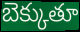
బెక్కుతూ